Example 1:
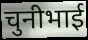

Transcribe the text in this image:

चुनीभाई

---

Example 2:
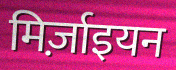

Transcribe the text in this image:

मिर्ज़ाइयन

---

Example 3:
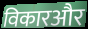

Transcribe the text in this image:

विकारऔर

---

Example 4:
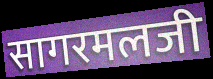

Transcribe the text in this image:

सागरमलजी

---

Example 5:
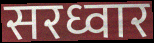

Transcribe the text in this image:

सरध्वार